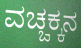
ವಚ್ಚಕ್ಕನ